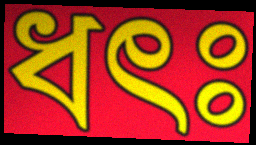
ধৎঃ